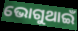
ଭୋଗୁଥାଇଁ